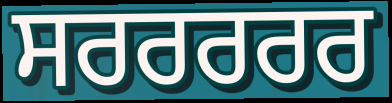
ਸਰਰਰਰਰ